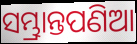
ସମ୍ଭ୍ରାନ୍ତପଣିଆ